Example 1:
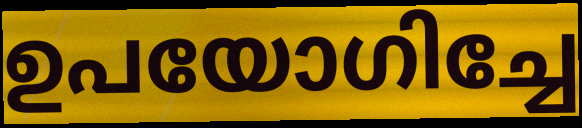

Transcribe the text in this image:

ഉപയോഗിച്ചേ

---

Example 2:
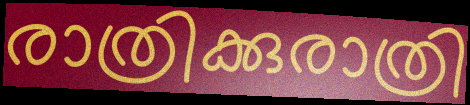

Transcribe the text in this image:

രാത്രിക്കുരാത്രി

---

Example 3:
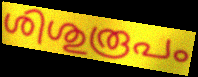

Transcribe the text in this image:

ശിശുരൂപം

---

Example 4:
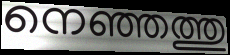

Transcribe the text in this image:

നെഞ്ഞത്തു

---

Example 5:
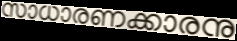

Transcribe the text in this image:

സാധാരണക്കാരനു